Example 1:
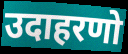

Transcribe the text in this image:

उदाहरणो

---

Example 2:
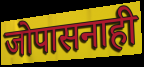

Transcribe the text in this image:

जोपासनाही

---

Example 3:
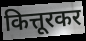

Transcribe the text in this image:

कित्तूरकर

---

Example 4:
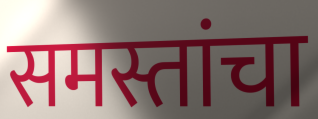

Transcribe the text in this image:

समस्तांचा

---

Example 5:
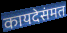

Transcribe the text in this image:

कायदेसंमत